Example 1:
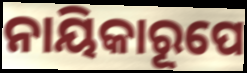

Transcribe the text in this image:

ନାୟିକାରୂପେ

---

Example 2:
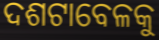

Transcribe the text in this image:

ଦଶଟାବେଳକୁ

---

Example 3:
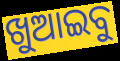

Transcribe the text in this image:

ଖୁଆଇବୁ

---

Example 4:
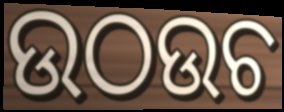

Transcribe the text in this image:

ଉଠଉଚ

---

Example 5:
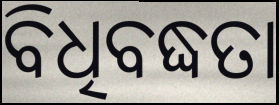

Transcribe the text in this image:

ବିଧିବଦ୍ଧତା